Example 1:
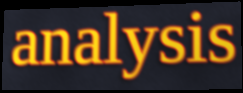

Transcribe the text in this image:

analysis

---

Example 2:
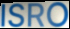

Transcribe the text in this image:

ISRO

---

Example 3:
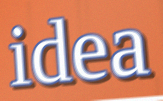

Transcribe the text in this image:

idea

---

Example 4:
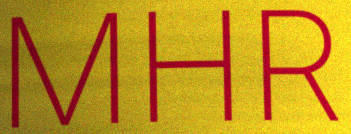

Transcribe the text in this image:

MHR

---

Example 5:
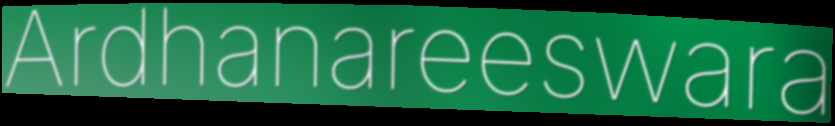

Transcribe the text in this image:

Ardhanareeswara